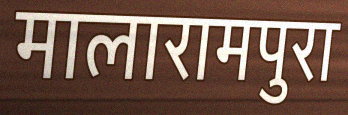
मालारामपुरा